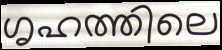
ഗൃഹത്തിലെ